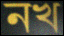
নখ